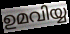
ഉമവിയ്യ